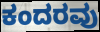
ಕಂದರವು